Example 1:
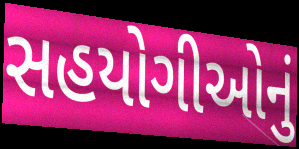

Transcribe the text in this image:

સહયોગીઓનું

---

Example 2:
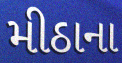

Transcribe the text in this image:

મીઠાના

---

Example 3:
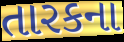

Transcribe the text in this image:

તારકના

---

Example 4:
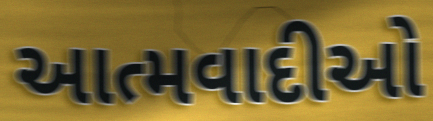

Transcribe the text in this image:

આત્મવાદીઓ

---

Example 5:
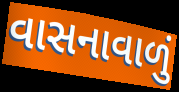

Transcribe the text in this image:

વાસનાવાળું